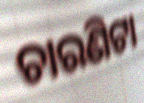
ଚାରଣିଟା